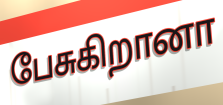
பேசுகிறானா